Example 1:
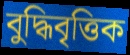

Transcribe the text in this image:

বুদ্ধিবৃত্তিক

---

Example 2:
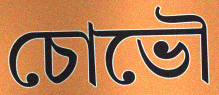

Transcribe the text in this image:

চোভৌ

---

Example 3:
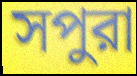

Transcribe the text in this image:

সপুরা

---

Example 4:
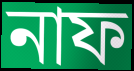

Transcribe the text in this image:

নাফ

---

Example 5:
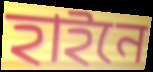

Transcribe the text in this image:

হাইনে